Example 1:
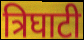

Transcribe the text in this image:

त्रिघाटी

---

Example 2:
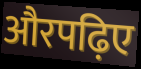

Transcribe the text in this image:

औरपढ़िए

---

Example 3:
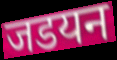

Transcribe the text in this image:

जडयन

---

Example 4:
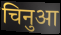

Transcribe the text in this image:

चिनुआ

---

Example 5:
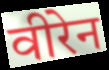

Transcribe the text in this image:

वीरेन